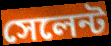
সেলেন্ট